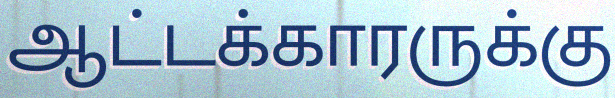
ஆட்டக்காரருக்கு